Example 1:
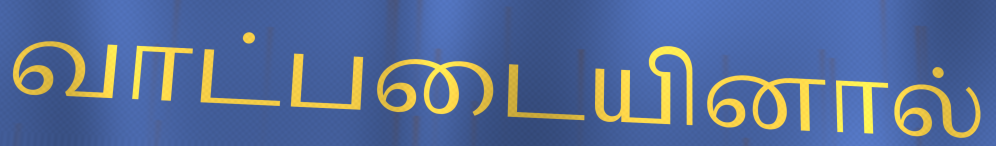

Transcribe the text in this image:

வாட்படையினால்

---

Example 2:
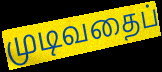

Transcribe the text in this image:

முடிவதைப்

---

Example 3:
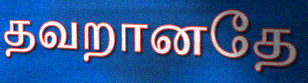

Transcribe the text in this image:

தவறானதே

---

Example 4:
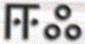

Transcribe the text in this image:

ஈஃ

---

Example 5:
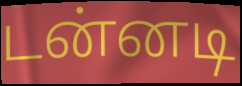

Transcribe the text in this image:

டன்னடி